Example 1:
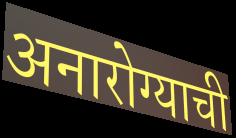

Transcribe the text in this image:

अनारोग्याची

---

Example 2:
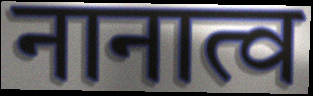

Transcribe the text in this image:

नानात्व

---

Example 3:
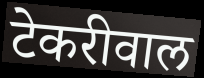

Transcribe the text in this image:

टेकरीवाल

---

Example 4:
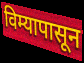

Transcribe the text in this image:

विम्यापासून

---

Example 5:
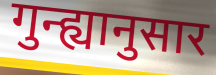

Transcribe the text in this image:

गुन्ह्यानुसार